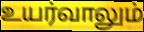
உயர்வாலும்